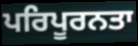
ਪਰਿਪੂਰਨਤਾ